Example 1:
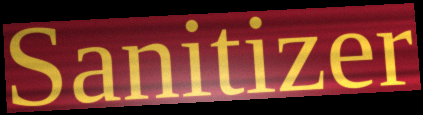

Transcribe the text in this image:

Sanitizer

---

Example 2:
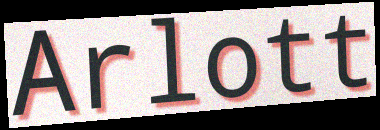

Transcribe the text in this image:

Arlott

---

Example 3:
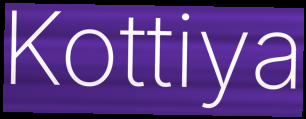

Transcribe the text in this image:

Kottiya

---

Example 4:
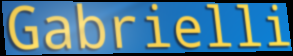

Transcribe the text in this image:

Gabrielli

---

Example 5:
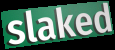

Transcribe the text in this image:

slaked